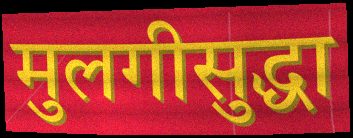
मुलगीसुद्धा